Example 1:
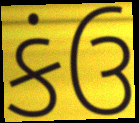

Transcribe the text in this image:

કંઉ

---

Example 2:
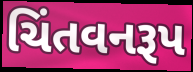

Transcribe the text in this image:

ચિંતવનરૂપ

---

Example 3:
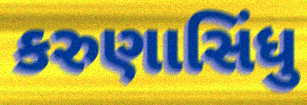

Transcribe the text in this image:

કરુણાસિંધુ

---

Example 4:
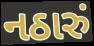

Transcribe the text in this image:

નઠારું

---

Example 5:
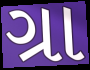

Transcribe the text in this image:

ગ્રા